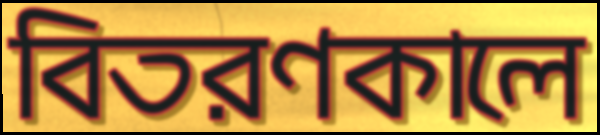
বিতরণকালে